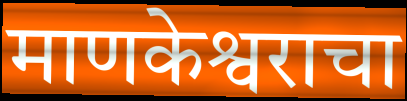
माणकेश्वराचा